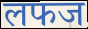
लफज